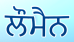
ਲੌਮੈਨ